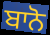
ਬਾਨੋ